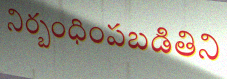
నిర్బంధింపబడితిని